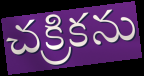
చక్రికను